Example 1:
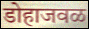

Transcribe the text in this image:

डोहाजवळ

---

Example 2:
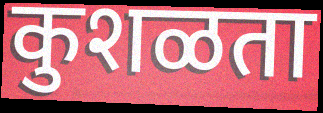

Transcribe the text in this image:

कुशळता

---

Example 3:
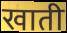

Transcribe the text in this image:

खाती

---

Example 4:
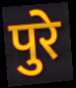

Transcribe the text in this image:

पुरे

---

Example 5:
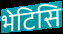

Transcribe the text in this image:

भेटिसि